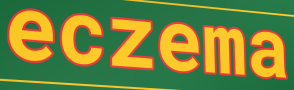
eczema